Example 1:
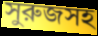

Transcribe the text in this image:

সুরুজসহ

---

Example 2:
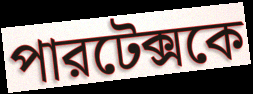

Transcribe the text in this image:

পারটেক্সকে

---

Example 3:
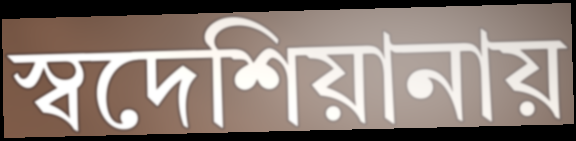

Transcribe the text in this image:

স্বদেশিয়ানায়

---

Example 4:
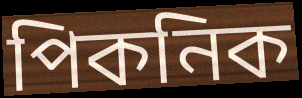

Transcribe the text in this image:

পিকনিক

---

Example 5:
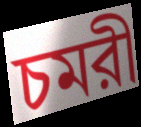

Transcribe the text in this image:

চমরী